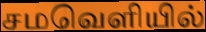
சமவெளியில்